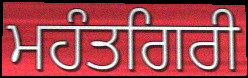
ਮਹੰਤਗਿਰੀ